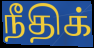
நீதிக்